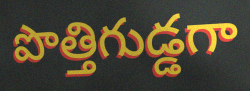
పొత్తిగుడ్డగా